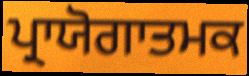
ਪ੍ਰਾਯੋਗਾਤਮਕ